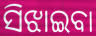
ସିଝାଇବା